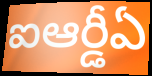
ఐఆర్డీఏ